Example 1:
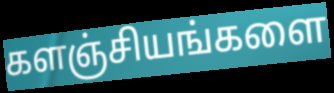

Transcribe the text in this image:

களஞ்சியங்களை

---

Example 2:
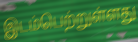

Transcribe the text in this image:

இடம்பெற்றுள்ளது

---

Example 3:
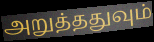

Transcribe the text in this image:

அறுத்ததுவும்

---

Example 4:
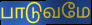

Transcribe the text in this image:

பாடுவமே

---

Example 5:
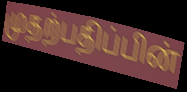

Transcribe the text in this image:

முதற்பதிப்பின்